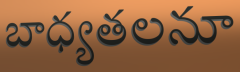
బాధ్యతలనూ